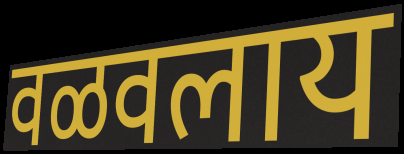
वळवलाय